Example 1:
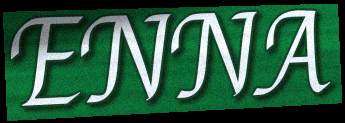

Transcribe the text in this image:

ENNA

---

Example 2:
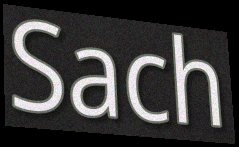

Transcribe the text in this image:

Sach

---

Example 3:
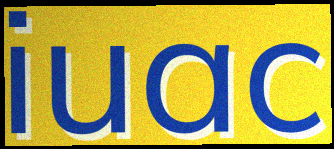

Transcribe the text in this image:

iuac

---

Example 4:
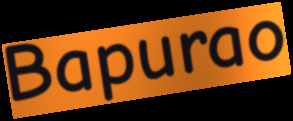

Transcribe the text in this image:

Bapurao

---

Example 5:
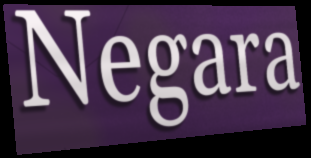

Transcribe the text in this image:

Negara